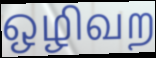
ஒழிவற